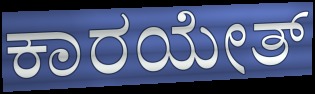
ಕಾರಯೇತ್